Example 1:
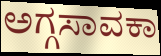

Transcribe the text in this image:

ಅಗ್ಗಸಾವಕಾ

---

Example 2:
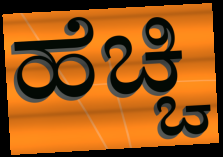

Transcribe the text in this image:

ಹೆಚ್ಚಿ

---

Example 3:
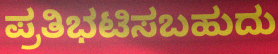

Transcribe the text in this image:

ಪ್ರತಿಭಟಿಸಬಹುದು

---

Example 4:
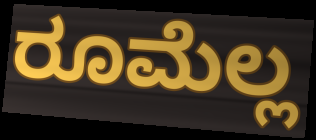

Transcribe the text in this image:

ರೂಮೆಲ್ಲ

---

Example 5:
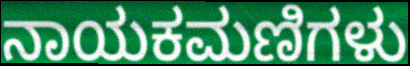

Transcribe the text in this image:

ನಾಯಕಮಣಿಗಳು